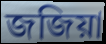
জজিয়া